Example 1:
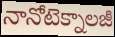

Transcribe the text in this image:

నానోటెక్నాలజీ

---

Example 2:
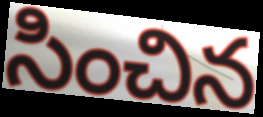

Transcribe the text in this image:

సించిన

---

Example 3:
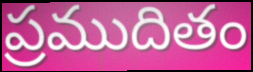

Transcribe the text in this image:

ప్రముదితం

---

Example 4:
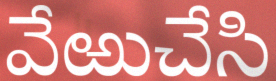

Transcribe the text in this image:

వేఱుచేసి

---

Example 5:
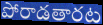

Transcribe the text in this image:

పోరాడతారట